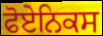
ਫੋਏਨਿਕਸ